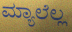
ಮ್ಯಾಲೆಲ್ಲ